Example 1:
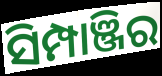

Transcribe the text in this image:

ସିମ୍ପାଞ୍ଜିର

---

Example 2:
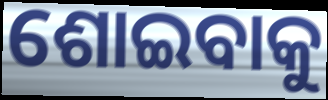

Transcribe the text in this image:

ଶୋଇବାକୁ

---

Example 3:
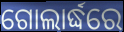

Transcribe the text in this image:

ଗୋଲାର୍ଦ୍ଧରେ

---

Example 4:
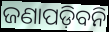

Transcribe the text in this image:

ଜଣାପଡ଼ିବନି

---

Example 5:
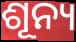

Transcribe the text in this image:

ଶୂନ୍ୟ